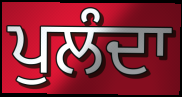
ਪੁਲੰਦਾ